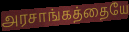
அரசாங்கத்தையே